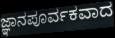
ಜ್ಞಾನಪೂರ್ವಕವಾದ